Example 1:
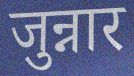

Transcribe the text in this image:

जुन्नार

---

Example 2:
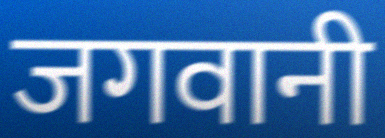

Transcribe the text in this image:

जगवानी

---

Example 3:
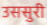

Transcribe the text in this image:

उससुरी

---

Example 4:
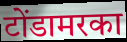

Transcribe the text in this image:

टोंडामरका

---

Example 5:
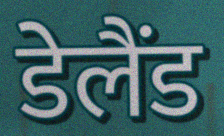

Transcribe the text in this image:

डेलैंड